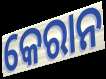
କେରାନ